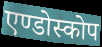
एण्डोस्कोप